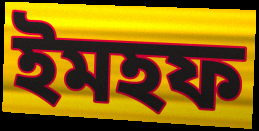
ইমহফ